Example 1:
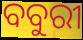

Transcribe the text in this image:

ବବୁରୀ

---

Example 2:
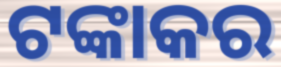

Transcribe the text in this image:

ଟଙ୍କାକର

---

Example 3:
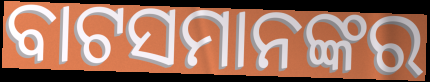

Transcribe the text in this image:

ବାଟସମାନଙ୍କର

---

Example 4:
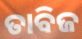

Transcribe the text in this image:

ତାବିଜ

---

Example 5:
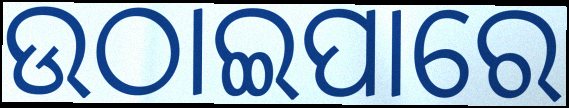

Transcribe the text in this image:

ଉଠାଇପାରେ